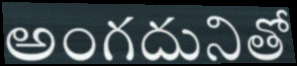
అంగదునితో